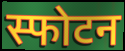
स्फोटन